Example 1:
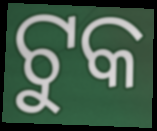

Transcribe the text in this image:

ଟୁକ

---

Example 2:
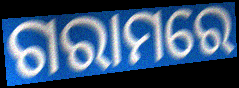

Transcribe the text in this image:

ଗରାମରେ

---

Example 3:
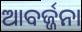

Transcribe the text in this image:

ଆବର୍ଜ୍ଜନା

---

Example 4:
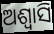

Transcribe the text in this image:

ଅଶ୍ୱାସି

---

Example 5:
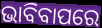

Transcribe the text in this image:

ଭାବିବାପରେ